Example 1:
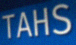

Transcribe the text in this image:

TAHS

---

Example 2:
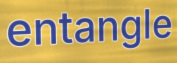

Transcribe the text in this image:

entangle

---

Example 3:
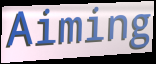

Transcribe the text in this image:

Aiming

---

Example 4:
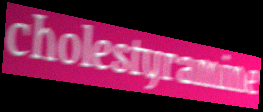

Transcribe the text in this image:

cholestyramine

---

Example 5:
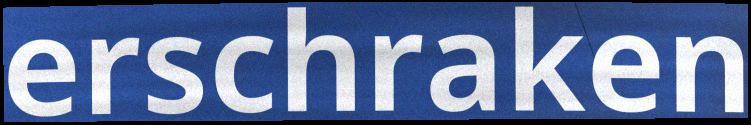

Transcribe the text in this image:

erschraken